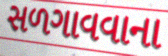
સળગાવવાના